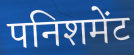
पनिशमेंट